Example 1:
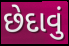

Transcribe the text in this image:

છેદાવું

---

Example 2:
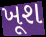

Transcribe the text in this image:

ખૂશ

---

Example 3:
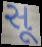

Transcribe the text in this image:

સૂ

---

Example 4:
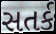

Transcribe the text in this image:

સતર્ક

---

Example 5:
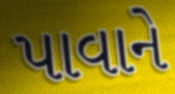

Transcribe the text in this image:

પાવાને